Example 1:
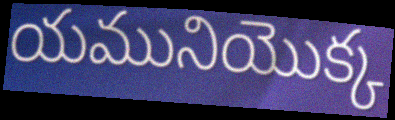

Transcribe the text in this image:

యమునియొక్క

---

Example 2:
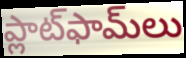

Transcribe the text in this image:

ప్లాట్‌ఫామ్‌లు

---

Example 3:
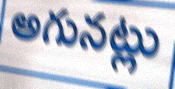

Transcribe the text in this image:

అగునట్లు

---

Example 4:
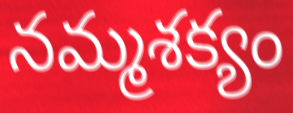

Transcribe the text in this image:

నమ్మశక్యం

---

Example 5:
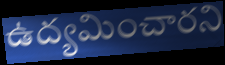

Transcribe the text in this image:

ఉద్యమించారని